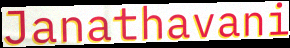
Janathavani